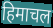
हिमाचल